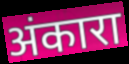
अंकारा